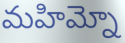
మహిమ్నో